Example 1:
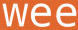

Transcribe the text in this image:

wee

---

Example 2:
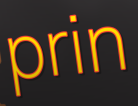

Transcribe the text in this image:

prin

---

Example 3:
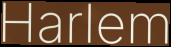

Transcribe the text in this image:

Harlem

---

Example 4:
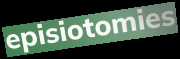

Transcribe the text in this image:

episiotomies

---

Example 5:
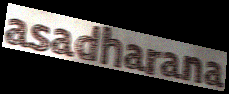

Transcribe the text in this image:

asadharana